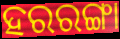
ହରରଙ୍ଗା